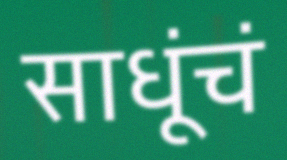
साधूंचं